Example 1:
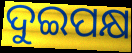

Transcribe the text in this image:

ଦୁଇପକ୍ଷ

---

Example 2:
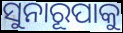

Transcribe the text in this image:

ସୁନାରୂପାକୁ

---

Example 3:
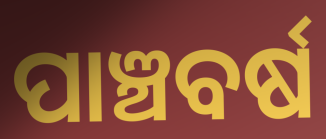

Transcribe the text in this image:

ପାଞ୍ଚବର୍ଷ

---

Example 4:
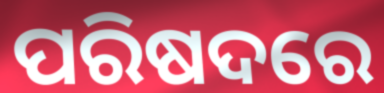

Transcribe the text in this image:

ପରିଷଦରେ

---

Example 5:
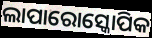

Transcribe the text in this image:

ଲାପାରୋସ୍କୋପିକ